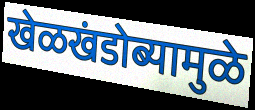
खेळखंडोब्यामुळे